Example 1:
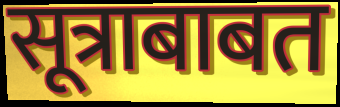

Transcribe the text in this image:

सूत्राबाबत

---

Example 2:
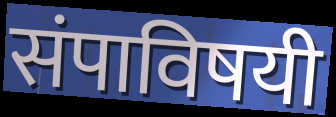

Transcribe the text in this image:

संपाविषयी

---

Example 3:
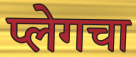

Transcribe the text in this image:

प्लेगचा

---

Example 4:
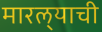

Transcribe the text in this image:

मारल्याची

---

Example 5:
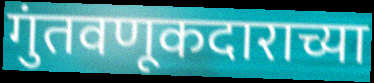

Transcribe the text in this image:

गुंतवणूकदाराच्या